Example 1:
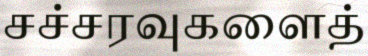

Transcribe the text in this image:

சச்சரவுகளைத்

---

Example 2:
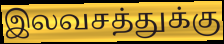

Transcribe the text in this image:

இலவசத்துக்கு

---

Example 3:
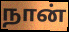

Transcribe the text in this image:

நான்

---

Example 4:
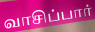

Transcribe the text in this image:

வாசிப்பார்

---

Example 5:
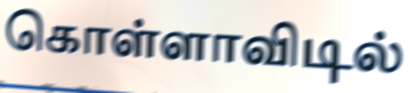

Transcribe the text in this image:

கொள்ளாவிடில்